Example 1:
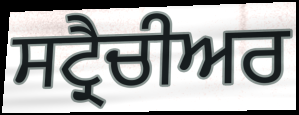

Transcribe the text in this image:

ਸਟ੍ਰੈਚੀਅਰ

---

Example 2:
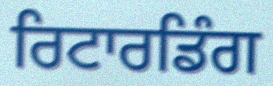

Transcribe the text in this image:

ਰਿਟਾਰਡਿੰਗ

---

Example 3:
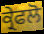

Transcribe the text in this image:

ਕ੍ਰੇਫਲੋ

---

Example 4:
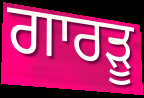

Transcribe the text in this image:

ਗਾਰੜੂ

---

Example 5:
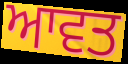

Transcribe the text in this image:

ਆਵਤ